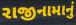
રાજીનામાનું